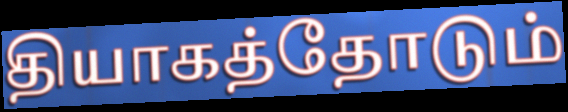
தியாகத்தோடும்